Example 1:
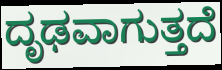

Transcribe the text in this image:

ದೃಢವಾಗುತ್ತದೆ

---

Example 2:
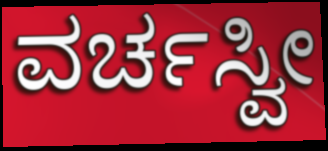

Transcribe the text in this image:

ವರ್ಚಸ್ವೀ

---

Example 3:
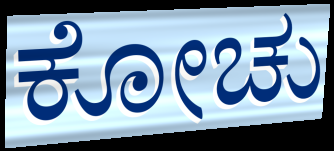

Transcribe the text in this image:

ಕೋಚು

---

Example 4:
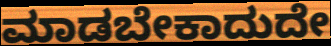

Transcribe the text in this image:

ಮಾಡಬೇಕಾದುದೇ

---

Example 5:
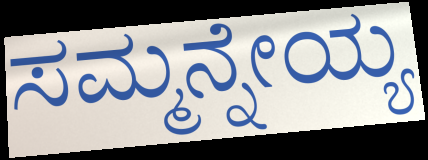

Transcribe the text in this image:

ಸಮ್ಮನ್ನೇಯ್ಯ